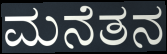
ಮನೆತನ